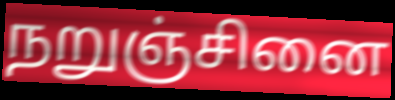
நறுஞ்சினை